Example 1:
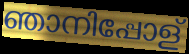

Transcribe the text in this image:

ഞാനിപ്പോള്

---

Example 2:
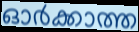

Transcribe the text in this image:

ഓർക്കാത്ത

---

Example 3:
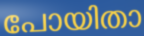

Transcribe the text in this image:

പോയിതാ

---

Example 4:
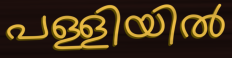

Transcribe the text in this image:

പള്ളിയിൽ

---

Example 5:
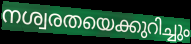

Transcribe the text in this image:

നശ്വരതയെക്കുറിച്ചും